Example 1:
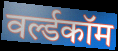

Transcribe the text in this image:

वर्ल्डकॉम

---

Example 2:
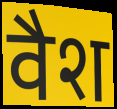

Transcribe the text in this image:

वैश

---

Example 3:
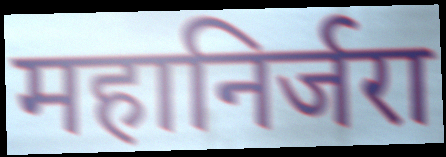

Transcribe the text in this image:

महानिर्जरा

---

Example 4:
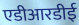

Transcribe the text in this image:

एडीआरडीई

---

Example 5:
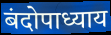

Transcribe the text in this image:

बंदोपाध्‍याय